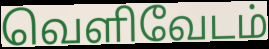
வெளிவேடம்